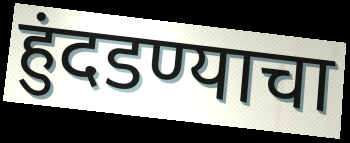
हुंदडण्याचा